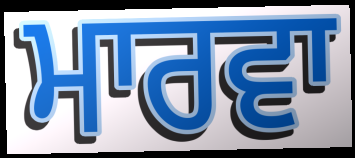
ਮਾਰਵਾ